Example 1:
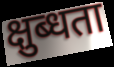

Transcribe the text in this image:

क्षुब्धता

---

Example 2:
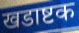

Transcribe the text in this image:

खडाष्टक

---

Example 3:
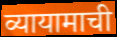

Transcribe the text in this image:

व्यायामाची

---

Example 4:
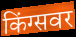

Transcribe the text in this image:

किंग्सवर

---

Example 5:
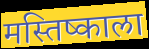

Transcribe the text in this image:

मस्तिष्काला